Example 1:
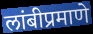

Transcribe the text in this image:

लांबीप्रमाणे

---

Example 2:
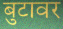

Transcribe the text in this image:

बुटावर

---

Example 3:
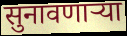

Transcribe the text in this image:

सुनावणाऱ्या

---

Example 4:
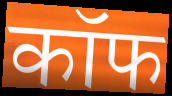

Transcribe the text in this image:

कॉफ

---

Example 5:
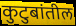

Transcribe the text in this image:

कुटुबांतील